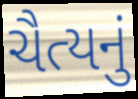
ચૈત્યનું